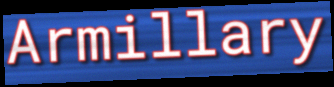
Armillary